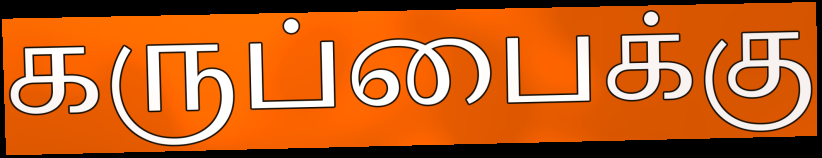
கருப்பைக்கு